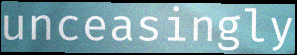
unceasingly